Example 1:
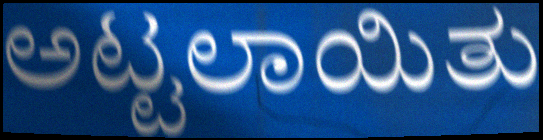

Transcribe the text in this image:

ಅಟ್ಟಲಾಯಿತು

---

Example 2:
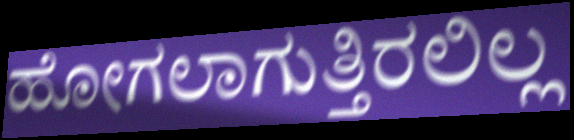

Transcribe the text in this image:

ಹೋಗಲಾಗುತ್ತಿರಲಿಲ್ಲ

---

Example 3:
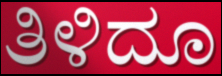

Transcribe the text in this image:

ತಿಳಿದೂ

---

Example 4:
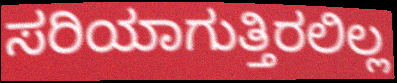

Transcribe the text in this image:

ಸರಿಯಾಗುತ್ತಿರಲಿಲ್ಲ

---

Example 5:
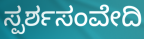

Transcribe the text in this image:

ಸ್ಪರ್ಶಸಂವೇದಿ